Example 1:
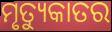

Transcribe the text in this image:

ମୃତ୍ୟୁକାତର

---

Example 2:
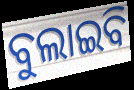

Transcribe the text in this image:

ବୁଲାଇବି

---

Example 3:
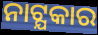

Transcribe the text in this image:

ନାଟ୍ଯକାର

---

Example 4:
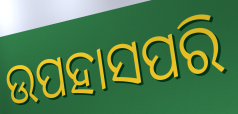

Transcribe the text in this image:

ଉପହାସପରି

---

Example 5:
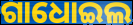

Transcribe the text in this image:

ଗାଧୋଇଲ